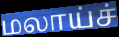
மலாய்ச்